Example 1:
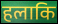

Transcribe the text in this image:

हलाकि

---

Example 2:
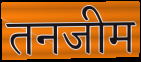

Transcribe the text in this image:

तनजीम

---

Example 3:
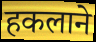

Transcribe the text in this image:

हकलाने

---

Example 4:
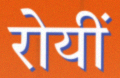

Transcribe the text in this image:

रोयीं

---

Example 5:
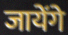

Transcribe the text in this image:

जायेंगे